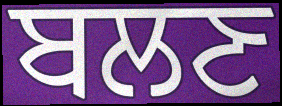
ਬਲਣ